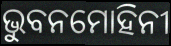
ଭୁବନମୋହିନୀ